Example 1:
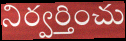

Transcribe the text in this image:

నిర్వర్తించు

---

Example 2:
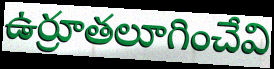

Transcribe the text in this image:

ఉర్రూతలూగించేవి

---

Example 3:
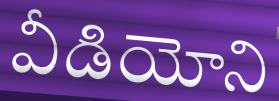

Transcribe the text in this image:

వీడియోని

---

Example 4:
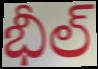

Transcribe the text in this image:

భీల్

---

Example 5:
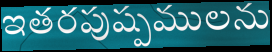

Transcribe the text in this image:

ఇతరపుష్పములను